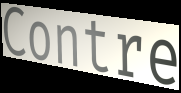
Contre